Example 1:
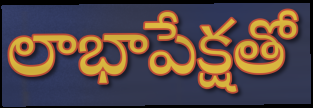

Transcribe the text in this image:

లాభాపేక్షతో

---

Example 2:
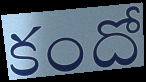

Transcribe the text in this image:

కందో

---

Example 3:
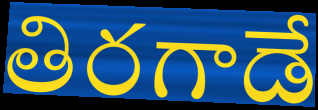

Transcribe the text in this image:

తిరగాడే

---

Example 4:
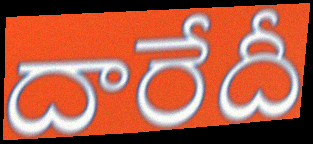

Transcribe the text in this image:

దారేదీ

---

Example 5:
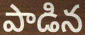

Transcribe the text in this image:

పాడిన